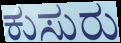
ಕುಸುರು